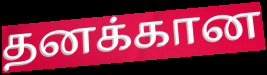
தனக்கான